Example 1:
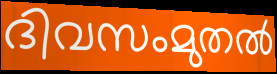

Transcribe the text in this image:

ദിവസംമുതൽ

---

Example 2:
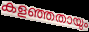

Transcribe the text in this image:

കളഞ്ഞതായും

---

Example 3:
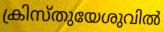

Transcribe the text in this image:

ക്രിസ്തുയേശുവിൽ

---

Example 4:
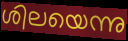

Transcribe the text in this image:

ശിലയെന്നു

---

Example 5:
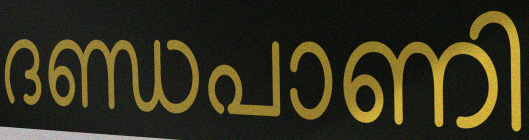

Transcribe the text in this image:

ദണ്ഡപാണി